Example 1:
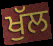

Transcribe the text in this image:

ਖੁੱਲ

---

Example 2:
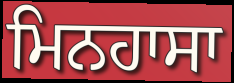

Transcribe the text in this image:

ਮਿਨਹਾਸਾ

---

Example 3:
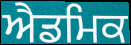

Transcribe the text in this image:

ਐਡਮਿਕ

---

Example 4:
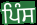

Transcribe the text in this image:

ਪਿੰਸ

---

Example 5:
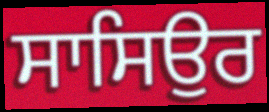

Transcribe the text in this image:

ਸਾਸਿਉਰ